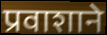
प्रवाशाने